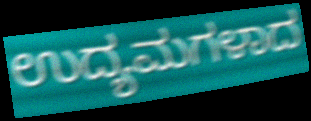
ಉದ್ಯಮಗಳಾದ